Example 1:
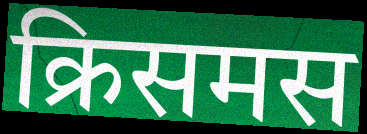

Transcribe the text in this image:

क्रिसमस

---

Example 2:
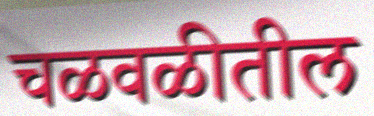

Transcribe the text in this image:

चळवळीतील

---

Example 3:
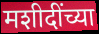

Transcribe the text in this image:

मशीदींच्या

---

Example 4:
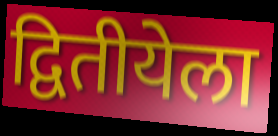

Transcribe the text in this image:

द्वितीयेला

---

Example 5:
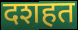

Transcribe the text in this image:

दशहत